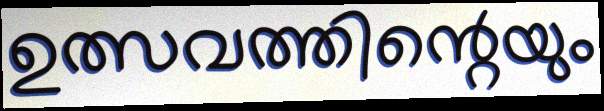
ഉത്സവത്തിന്റെയും